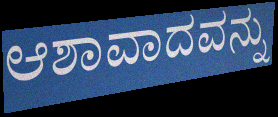
ಆಶಾವಾದವನ್ನು